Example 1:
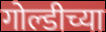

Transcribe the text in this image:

गोल्डीच्या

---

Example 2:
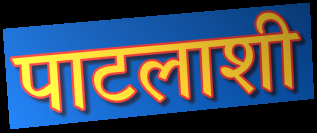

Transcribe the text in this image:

पाटलाशी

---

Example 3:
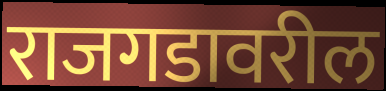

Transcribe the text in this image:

राजगडावरील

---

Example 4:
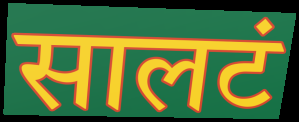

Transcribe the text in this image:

सालटं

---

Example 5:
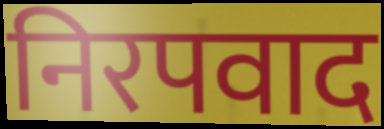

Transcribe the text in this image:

निरपवाद